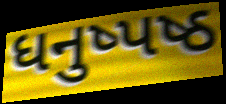
ધનુષ્પષ્ઠ